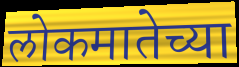
लोकमातेच्या